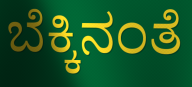
ಬೆಕ್ಕಿನಂತೆ